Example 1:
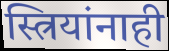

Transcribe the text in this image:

स्त्रियांनाही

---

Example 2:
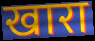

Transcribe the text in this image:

खारा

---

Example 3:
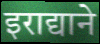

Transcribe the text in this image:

इराद्याने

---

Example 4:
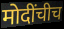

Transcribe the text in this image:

मोदींचीच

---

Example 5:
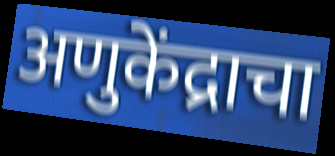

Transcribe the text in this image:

अणुकेंद्राचा